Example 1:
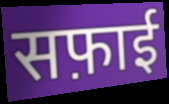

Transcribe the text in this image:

सफ़ाई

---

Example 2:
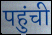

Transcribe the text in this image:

पहुंची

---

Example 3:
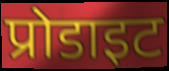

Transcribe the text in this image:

प्रोडाइट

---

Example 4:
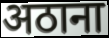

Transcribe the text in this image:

अठाना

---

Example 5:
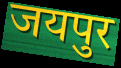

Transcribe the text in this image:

जयपुर